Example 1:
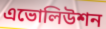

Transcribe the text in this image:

এভোলিউশন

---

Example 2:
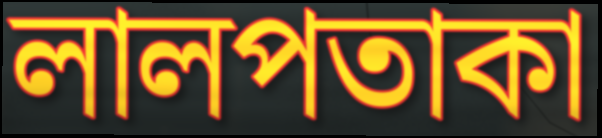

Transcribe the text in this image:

লালপতাকা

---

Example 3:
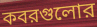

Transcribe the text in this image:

কবরগুলোর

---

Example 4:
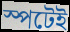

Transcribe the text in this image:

স্পটেই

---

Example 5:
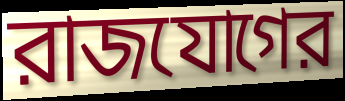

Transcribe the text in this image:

রাজযোগের